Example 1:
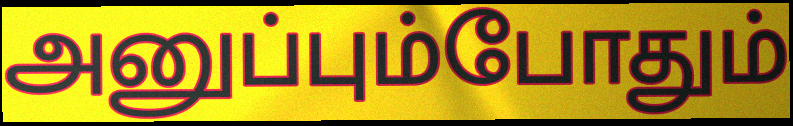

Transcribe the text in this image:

அனுப்பும்போதும்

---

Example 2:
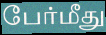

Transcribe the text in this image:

பேர்மீது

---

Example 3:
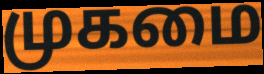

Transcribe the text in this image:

முகமை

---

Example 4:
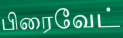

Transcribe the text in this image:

பிரைவேட்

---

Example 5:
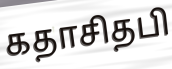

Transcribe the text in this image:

கதாசிதபி